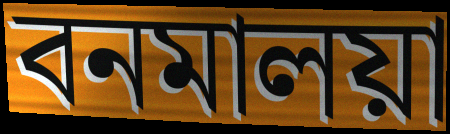
বনমালয়া